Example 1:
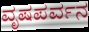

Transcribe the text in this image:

ವೃಷಪರ್ವನ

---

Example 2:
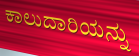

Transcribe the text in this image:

ಕಾಲುದಾರಿಯನ್ನು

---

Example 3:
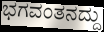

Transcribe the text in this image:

ಭಗವಂತನದ್ದು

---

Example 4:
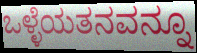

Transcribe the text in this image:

ಒಳ್ಳೆಯತನವನ್ನೂ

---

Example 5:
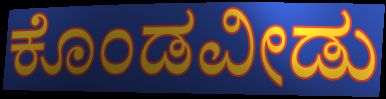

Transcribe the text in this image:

ಕೊಂಡವೀಡು